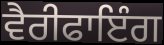
ਵੈਰੀਫਾਇੰਗ